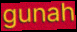
gunah